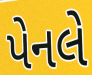
પેનલે